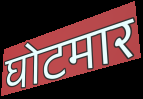
घोटमार